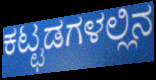
ಕಟ್ಟಡಗಳಲ್ಲಿನ